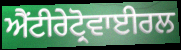
ਐਂਟੀਰੇਟ੍ਰੋਵਾਈਰਲ